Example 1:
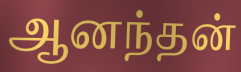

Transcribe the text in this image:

ஆனந்தன்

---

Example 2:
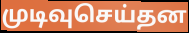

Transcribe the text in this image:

முடிவுசெய்தன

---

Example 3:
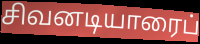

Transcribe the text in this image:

சிவனடியாரைப்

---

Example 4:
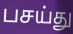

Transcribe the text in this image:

பசய்து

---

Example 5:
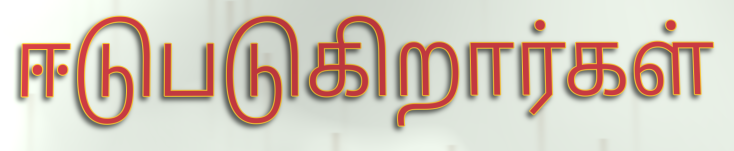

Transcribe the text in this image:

ஈடுபடுகிறார்கள்